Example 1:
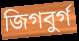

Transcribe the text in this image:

জিগবুর্গ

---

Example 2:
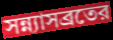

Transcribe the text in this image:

সন্ন্যাসব্রতের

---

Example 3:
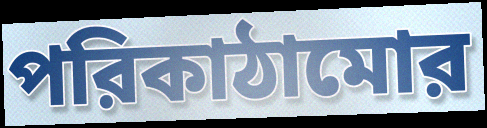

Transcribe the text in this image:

পরিকাঠামোর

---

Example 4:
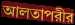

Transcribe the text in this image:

আলতাপরীর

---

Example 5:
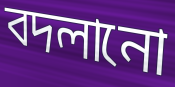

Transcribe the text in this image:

বদলানো